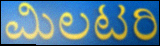
ಮಿಲಟರಿ